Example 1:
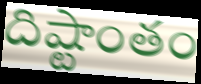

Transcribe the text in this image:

దిష్టాంతం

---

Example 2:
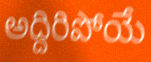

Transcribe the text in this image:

అద్దిరిపోయే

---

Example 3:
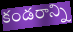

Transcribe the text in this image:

కండరాన్ని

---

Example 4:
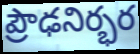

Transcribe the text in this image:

ప్రౌఢనిర్భర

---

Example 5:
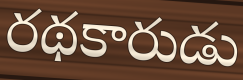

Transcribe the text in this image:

రథకారుడు